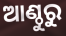
ଆଣ୍ଠୁରୁ